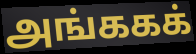
அங்ககக்